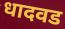
धादवड